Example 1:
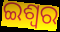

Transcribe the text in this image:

ଇଶ୍ବର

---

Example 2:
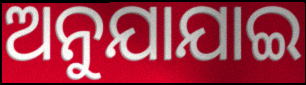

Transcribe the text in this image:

ଅନୁଯାଯାଇ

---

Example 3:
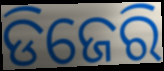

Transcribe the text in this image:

ଡିଜେରି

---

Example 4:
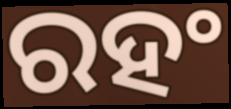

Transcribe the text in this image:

ରହଂ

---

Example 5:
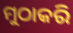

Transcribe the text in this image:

ମୁଠାକରି